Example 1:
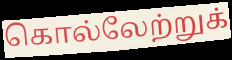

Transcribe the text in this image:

கொல்லேற்றுக்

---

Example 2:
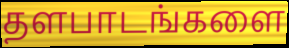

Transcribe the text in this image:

தளபாடங்களை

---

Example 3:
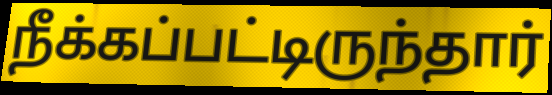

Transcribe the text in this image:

நீக்கப்பட்டிருந்தார்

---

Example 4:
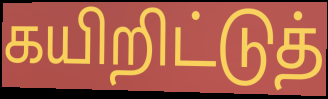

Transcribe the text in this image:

கயிறிட்டுத்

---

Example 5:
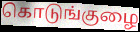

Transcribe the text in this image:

கொடுங்குழை